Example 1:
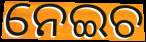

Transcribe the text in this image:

ନେଇଚ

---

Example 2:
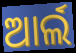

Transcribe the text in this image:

ଆର୍ଲ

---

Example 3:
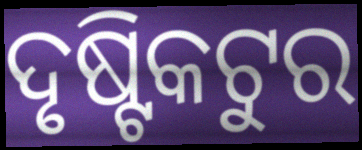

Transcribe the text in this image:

ଦୃଷ୍ଟିକଟୁର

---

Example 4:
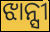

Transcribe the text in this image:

ଝାନ୍ସୀ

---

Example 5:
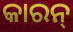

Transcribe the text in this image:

କାରନ୍